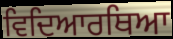
ਵਿਦਿਆਰਥਿਆ